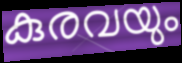
കുരവയും